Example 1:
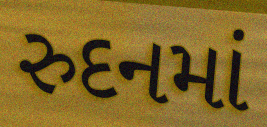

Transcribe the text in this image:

રુદનમાં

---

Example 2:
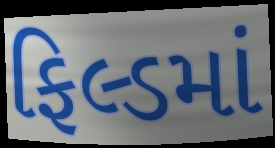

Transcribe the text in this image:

ફિલ્ડમાં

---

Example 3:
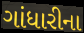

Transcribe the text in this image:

ગાંધારીના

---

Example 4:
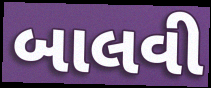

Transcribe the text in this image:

બાલવી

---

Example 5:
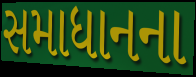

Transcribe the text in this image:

સમાધાનના